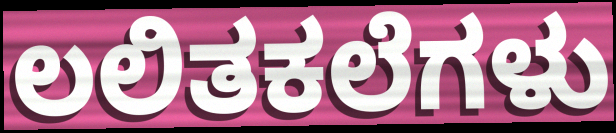
ಲಲಿತಕಲೆಗಳು